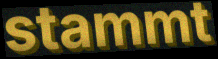
stammt